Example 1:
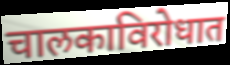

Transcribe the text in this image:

चालकाविरोधात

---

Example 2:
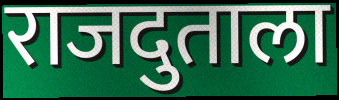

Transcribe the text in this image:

राजदुताला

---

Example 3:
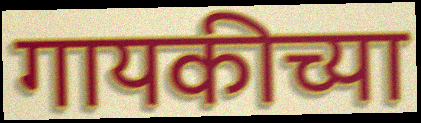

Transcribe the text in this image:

गायकीच्या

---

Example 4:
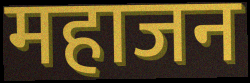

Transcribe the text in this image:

महाजन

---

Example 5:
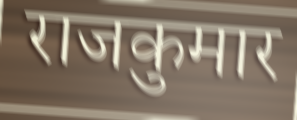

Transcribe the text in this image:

राजकुमार